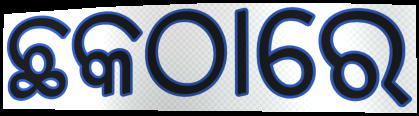
ଛକଠାରେ